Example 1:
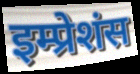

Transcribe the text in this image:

इम्प्रेशंस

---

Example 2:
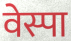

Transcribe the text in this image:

वेस्‍पा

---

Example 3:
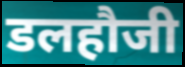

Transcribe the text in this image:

डलहौजी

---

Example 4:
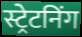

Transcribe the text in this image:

स्ट्रेटनिंग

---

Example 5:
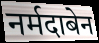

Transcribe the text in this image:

नर्मदाबेन